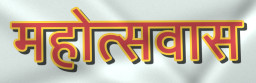
महोत्सवास